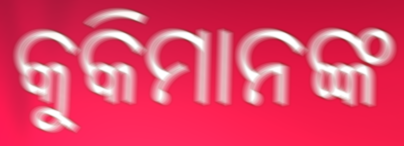
କୁକିମାନଙ୍କ